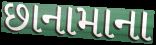
છાનામાના